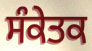
ਸੰਕੇਤਕ